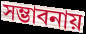
সম্ভাবনায়